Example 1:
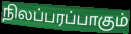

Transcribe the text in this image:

நிலப்பரப்பாகும்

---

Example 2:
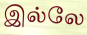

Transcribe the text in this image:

இல்லே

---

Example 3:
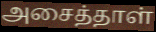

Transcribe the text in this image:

அசைத்தாள்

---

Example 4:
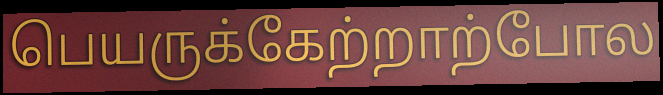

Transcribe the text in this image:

பெயருக்கேற்றாற்போல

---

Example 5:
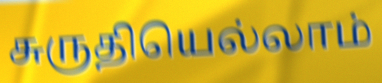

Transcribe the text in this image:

சுருதியெல்லாம்